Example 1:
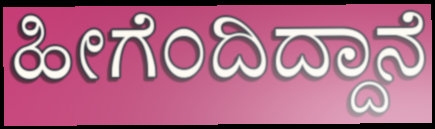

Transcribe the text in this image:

ಹೀಗೆಂದಿದ್ದಾನೆ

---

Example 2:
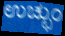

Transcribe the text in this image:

ಉಚ್ಛುಂ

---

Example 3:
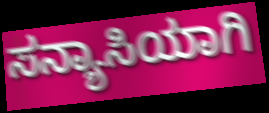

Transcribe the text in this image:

ಸನ್ಯಾಸಿಯಾಗಿ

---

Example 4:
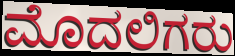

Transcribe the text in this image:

ಮೊದಲಿಗರು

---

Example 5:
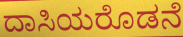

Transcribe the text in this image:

ದಾಸಿಯರೊಡನೆ